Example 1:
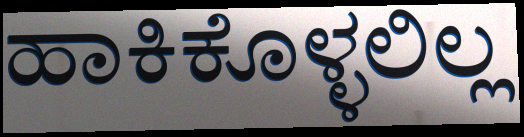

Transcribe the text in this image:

ಹಾಕಿಕೊಳ್ಳಲಿಲ್ಲ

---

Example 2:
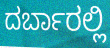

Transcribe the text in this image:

ದರ್ಬಾರಲ್ಲಿ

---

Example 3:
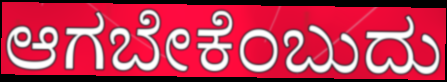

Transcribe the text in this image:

ಆಗಬೇಕೆಂಬುದು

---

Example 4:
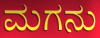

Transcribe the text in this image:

ಮಗನು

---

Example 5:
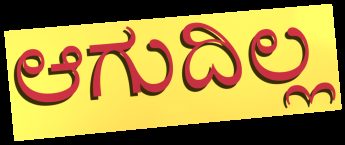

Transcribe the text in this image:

ಆಗುದಿಲ್ಲ